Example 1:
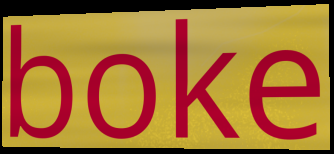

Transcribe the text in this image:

boke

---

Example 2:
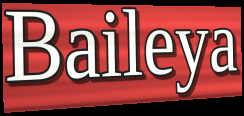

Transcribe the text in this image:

Baileya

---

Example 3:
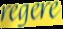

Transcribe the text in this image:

regere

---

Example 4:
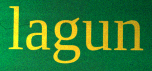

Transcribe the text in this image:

lagun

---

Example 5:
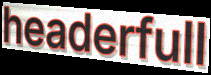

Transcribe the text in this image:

headerfull